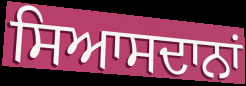
ਸਿਆਸਦਾਨਾਂ